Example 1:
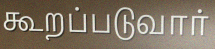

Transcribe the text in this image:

கூறப்படுவார்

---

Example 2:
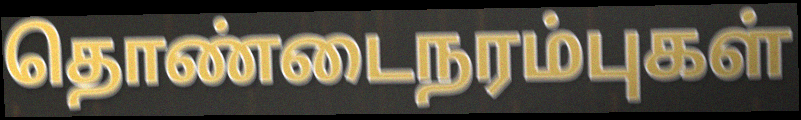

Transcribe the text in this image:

தொண்டைநரம்புகள்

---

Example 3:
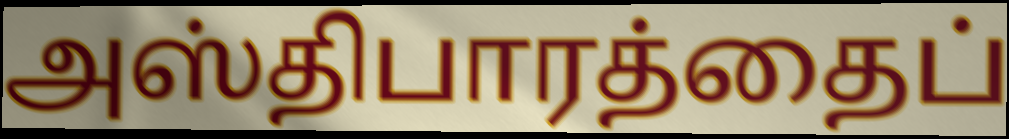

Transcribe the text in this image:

அஸ்திபாரத்தைப்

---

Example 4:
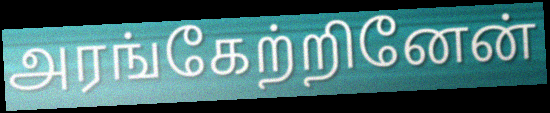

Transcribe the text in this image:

அரங்கேற்றினேன்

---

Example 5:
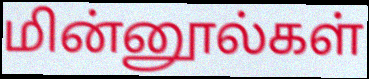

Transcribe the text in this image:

மின்னூல்கள்